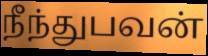
நீந்துபவன்